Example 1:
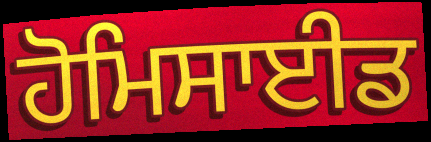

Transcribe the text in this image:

ਹੋਮਿਸਾਈਡ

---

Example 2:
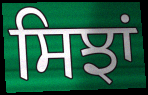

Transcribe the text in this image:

ਸਿਝਾਂ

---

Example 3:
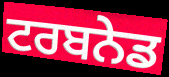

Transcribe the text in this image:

ਟਰਬਨੇਡ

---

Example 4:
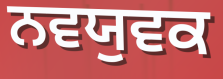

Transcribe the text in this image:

ਨਵਯੁਵਕ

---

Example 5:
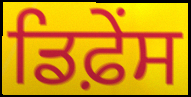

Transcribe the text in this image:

ਡਿਫ਼ੇਂਸ